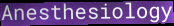
Anesthesiology